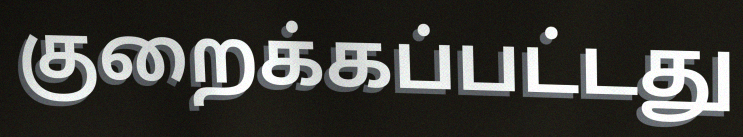
குறைக்கப்பட்டது